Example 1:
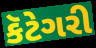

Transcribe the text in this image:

કૅટેગરી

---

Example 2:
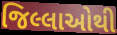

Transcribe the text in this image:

જિલ્લાઓથી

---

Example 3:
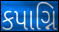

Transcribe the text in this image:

કપાગ્નિ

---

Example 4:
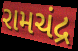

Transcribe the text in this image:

રામચંદ્ર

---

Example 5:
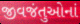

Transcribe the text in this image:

જીવજંતુઓનાં